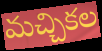
మచ్చికల